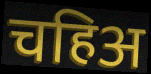
चहिअ